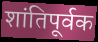
शांतिपूर्वक